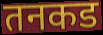
तनकड